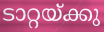
ടാറ്റയ്ക്കു